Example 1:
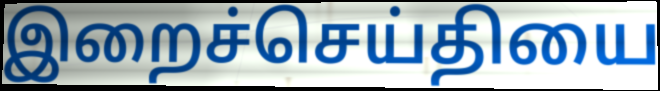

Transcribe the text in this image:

இறைச்செய்தியை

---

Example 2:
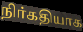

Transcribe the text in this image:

நிர்கதியாக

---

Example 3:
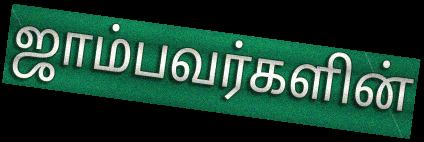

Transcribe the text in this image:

ஜாம்பவர்களின்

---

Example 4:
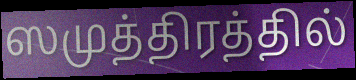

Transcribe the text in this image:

ஸமுத்திரத்தில்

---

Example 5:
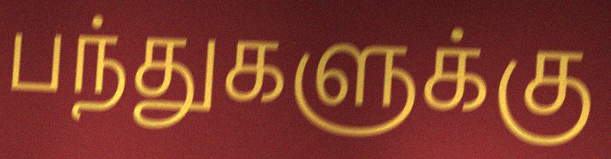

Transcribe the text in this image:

பந்துகளுக்கு